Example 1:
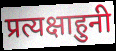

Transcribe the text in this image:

प्रत्यक्षाहुनी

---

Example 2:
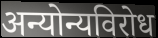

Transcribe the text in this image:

अन्योन्यविरोध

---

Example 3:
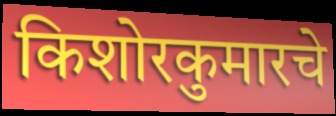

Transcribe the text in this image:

किशोरकुमारचे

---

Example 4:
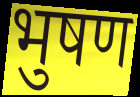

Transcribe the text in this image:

भुषण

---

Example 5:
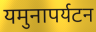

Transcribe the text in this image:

यमुनापर्यटन